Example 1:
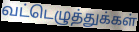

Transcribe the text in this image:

வட்டெழுத்துக்கள்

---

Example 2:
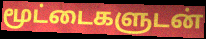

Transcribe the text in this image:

மூட்டைகளுடன்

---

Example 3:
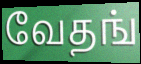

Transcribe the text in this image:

வேதங்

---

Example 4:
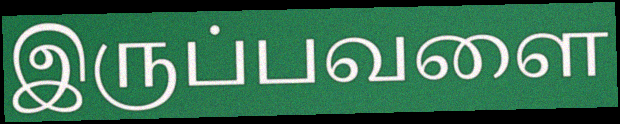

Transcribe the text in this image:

இருப்பவளை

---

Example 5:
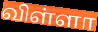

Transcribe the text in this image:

விள்ளா